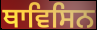
ਥਾਵਿਸਿਨ